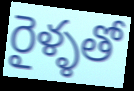
రైళ్ళతో